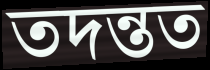
তদন্তত